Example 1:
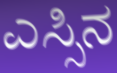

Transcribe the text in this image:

ಎಸ್ಸಿನ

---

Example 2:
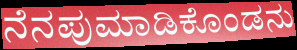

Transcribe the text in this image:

ನೆನಪುಮಾಡಿಕೊಂಡನು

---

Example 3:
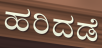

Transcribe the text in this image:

ಹರಿದಡೆ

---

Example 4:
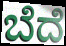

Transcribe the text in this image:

ಬೆದೆ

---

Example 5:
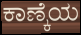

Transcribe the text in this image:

ಕಾಣ್ಕೆಯ